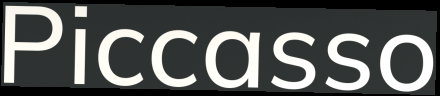
Piccasso